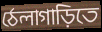
ঠেলাগাড়িতে